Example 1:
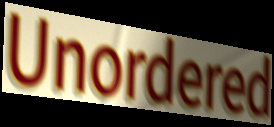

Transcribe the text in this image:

Unordered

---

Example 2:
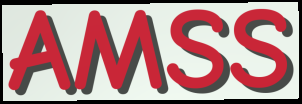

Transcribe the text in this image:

AMSS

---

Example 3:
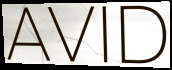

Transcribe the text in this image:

AVID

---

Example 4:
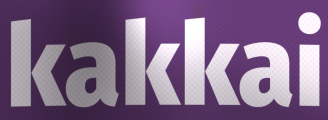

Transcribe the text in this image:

kakkai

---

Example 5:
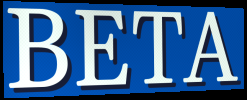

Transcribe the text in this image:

BETA